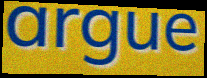
argue